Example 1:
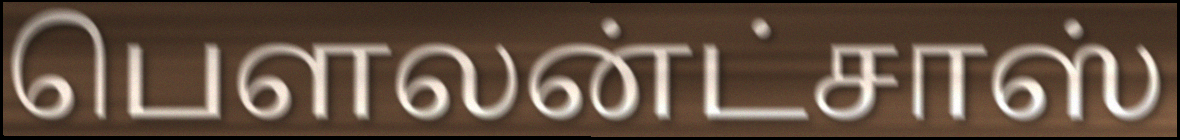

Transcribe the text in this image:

பௌலன்ட்சாஸ்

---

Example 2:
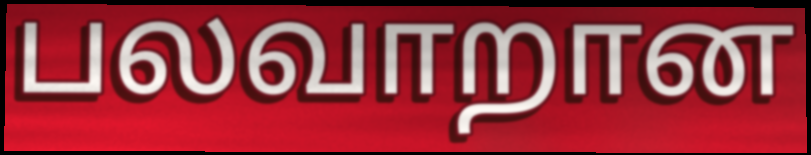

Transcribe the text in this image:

பலவாறான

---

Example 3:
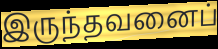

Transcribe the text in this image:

இருந்தவனைப்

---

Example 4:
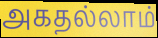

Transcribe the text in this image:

அகதல்லாம்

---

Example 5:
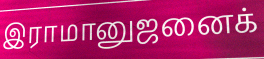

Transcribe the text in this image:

இராமானுஜனைக்